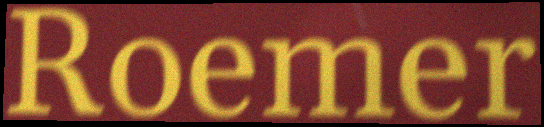
Roemer